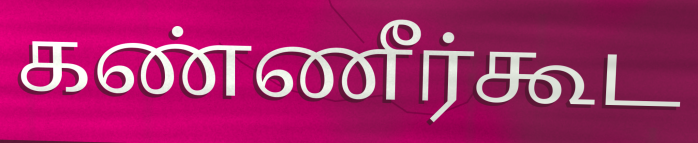
கண்ணீர்கூட